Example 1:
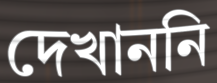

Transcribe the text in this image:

দেখাননি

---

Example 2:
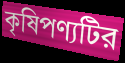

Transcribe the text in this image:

কৃষিপণ্যটির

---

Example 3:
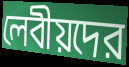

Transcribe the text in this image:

লেবীয়দের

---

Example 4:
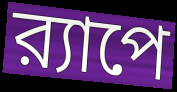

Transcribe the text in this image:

র‍্যাপে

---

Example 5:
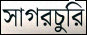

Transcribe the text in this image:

সাগরচুরি